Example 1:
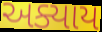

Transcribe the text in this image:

અક્યાય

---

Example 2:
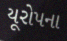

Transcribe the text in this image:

યૂરોપના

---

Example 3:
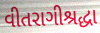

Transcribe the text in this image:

વીતરાગીશ્રદ્ધા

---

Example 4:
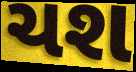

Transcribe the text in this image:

ચશ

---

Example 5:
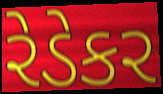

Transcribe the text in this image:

રેડેકર